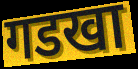
गडखा